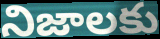
నిజాలకు